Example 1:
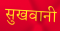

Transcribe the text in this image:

सुखवानी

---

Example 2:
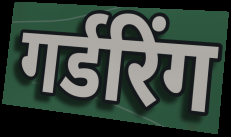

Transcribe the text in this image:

गर्डरिंग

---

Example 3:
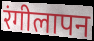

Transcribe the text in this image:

रंगीलापन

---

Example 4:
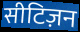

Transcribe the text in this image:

सीटिज़न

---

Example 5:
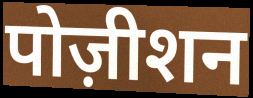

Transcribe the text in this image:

पोज़ीशन